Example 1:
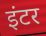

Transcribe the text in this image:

इंटर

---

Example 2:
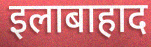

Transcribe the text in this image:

इलाबाहाद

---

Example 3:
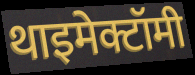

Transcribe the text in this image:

थाइमेक्टॉमी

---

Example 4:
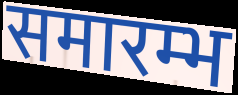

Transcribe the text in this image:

समारम्भ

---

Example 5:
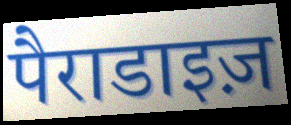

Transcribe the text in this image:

पैराडाइज़